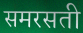
समरसती